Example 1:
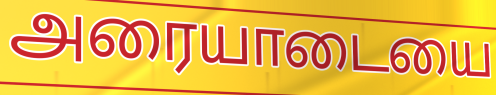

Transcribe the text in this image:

அரையாடையை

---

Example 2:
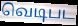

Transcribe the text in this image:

வெடிபட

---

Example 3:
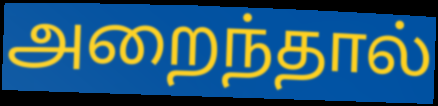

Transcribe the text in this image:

அறைந்தால்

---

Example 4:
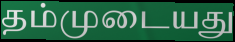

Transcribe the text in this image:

தம்முடையது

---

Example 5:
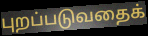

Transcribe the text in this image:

புறப்படுவதைக்